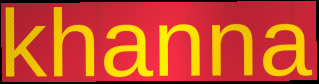
khanna